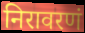
निरावरणं